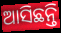
ଆସିଛନ୍ତି